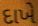
દાખે